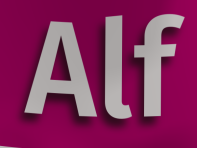
Alf